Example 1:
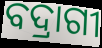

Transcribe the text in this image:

ବଦ୍ରାଗୀ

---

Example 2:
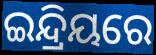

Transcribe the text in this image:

ଇନ୍ଦ୍ରିୟରେ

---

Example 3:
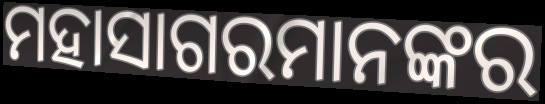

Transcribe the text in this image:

ମହାସାଗରମାନଙ୍କର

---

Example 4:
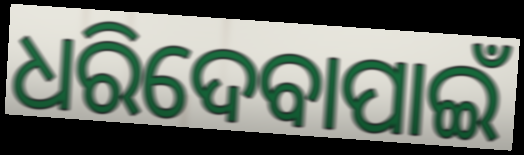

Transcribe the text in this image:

ଧରିଦେବାପାଇଁ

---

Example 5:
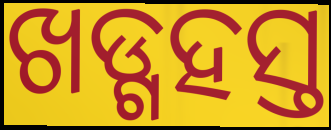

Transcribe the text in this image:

ଖଡ୍ଗହସ୍ତ